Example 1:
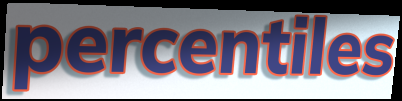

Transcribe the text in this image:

percentiles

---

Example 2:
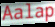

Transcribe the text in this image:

Aalap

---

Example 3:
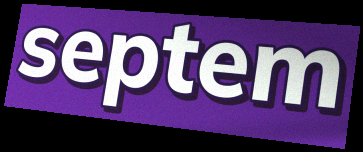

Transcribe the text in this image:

septem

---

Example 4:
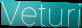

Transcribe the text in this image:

Veturi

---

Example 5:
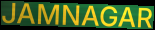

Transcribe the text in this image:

JAMNAGAR